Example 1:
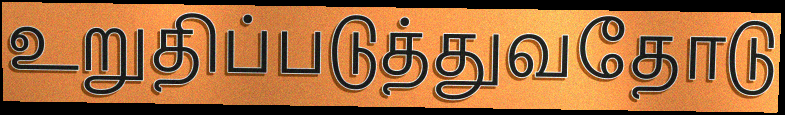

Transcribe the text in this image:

உறுதிப்படுத்துவதோடு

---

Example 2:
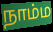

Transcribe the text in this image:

நாம்ம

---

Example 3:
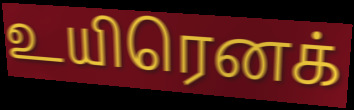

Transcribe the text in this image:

உயிரெனக்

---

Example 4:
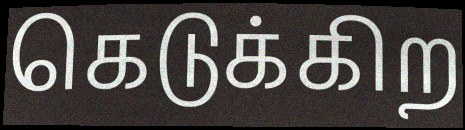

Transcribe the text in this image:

கெடுக்கிற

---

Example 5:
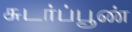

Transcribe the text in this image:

சுடர்ப்பூண்